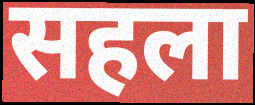
सहला